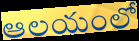
ఆలయంలో